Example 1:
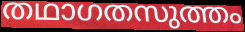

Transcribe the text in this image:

തഥാഗതസുത്തം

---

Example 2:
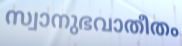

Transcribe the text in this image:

സ്വാനുഭവാതീതം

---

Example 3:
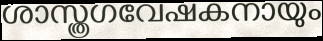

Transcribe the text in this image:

ശാസ്ത്രഗവേഷകനായും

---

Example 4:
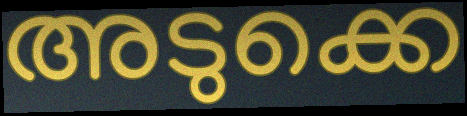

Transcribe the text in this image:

അടുക്കെ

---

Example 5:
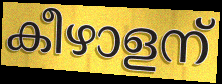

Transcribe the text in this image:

കീഴാളന്